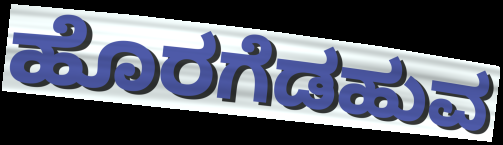
ಹೊರಗೆಡಹುವ